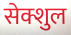
सेक्शुल